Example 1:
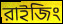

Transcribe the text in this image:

রাইজিং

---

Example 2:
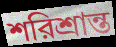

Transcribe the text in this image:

শরিশ্রান্ত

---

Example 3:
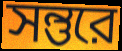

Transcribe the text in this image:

সন্তুরে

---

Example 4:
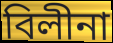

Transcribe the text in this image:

বিলীনা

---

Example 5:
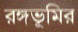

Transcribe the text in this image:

রঙ্গভূমির